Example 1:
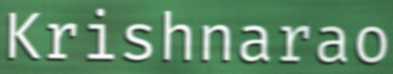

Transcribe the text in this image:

Krishnarao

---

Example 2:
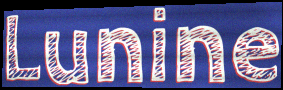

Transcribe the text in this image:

Lunine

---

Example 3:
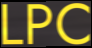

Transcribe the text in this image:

LPC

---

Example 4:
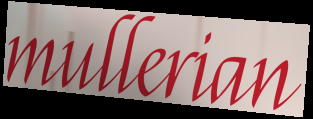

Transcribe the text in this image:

mullerian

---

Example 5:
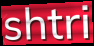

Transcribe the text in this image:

shtri